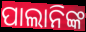
ପାଲାନିଙ୍କ